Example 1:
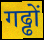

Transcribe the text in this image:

गढ्ढों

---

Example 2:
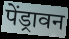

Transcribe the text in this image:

पेंड्रावन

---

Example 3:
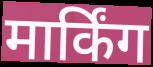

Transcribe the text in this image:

मार्किंग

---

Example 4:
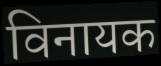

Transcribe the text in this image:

विनायक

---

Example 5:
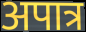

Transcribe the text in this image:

अपात्र